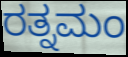
ರತ್ನಮಂ